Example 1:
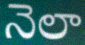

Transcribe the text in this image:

నెలా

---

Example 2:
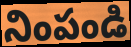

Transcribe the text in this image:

నింపండి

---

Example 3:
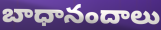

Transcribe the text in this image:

బాధానందాలు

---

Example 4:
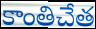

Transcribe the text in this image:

కాంతిచేత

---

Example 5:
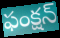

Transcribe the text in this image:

ఫంక్షన్